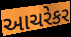
આચરેકર